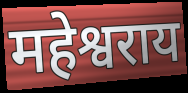
महेश्वराय